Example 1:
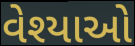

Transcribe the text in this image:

વેશ્યાઓ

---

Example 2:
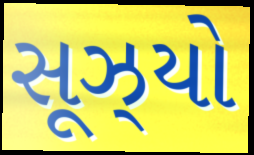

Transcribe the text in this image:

સૂઝ્યો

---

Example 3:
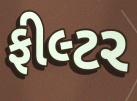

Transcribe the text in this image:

ફીલ્ટર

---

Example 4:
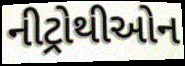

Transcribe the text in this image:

નીટ્રોથીઓન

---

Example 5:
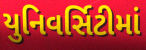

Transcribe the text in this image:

યુનિવર્સિટીમાં